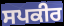
ਸਪਕੀਰ